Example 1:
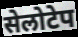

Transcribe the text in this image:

सेलोटेप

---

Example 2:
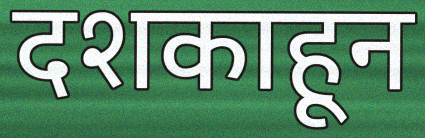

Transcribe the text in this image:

दशकाहून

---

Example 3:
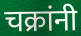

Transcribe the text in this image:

चक्रांनी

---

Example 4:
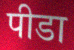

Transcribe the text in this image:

पीडा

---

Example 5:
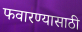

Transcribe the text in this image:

फवारण्यासाठी